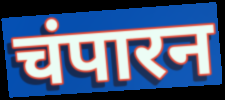
चंपारन